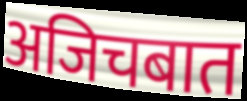
अजिचबात